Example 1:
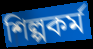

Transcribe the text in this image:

শিল্পকৰ্ম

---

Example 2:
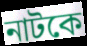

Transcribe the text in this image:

নাটকে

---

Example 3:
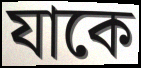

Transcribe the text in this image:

যাকে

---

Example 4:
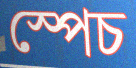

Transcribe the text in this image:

স্পেচ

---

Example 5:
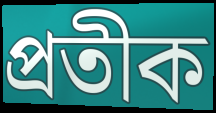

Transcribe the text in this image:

প্ৰতীক